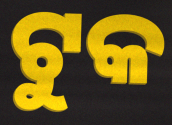
ଟୁକ